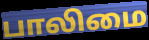
பாலிமை